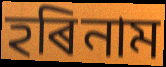
হৰিনাম